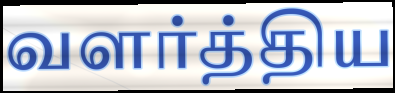
வளர்த்திய